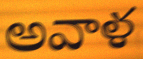
అవాళ